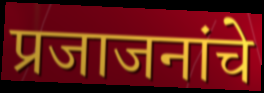
प्रजाजनांचे